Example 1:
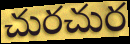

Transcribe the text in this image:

చురచుర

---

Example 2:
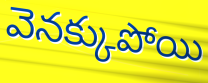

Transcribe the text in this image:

వెనక్కుపోయి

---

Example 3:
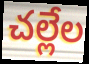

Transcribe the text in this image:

చల్లేల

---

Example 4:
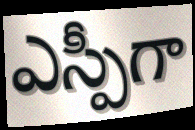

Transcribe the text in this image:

ఎస్పీగా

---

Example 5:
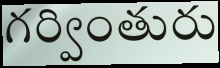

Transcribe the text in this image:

గర్వింతురు